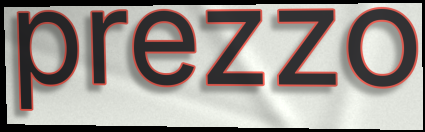
prezzo